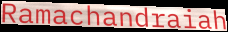
Ramachandraiah